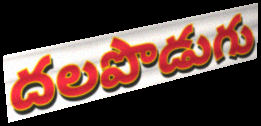
దలపొడుగు